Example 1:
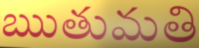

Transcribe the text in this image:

ఋతుమతి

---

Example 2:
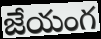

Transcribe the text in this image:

జేయంగ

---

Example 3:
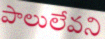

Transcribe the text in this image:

పాలులేవని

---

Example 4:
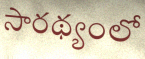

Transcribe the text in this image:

సారథ్యంలో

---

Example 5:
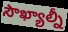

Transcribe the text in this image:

సౌఖ్యాల్నీ